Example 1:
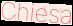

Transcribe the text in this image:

Chiesa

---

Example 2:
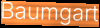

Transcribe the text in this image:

Baumgart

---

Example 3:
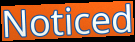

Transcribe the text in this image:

Noticed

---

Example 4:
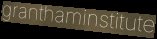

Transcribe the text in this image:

granthaminstitute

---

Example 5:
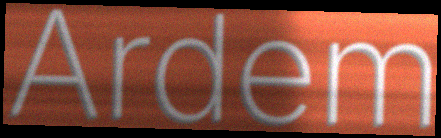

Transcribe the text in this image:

Ardem